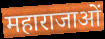
महाराजाओं